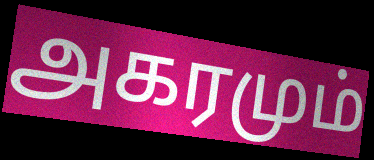
அகரமும்